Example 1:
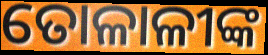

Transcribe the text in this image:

ତୋଳାଳୀଙ୍କ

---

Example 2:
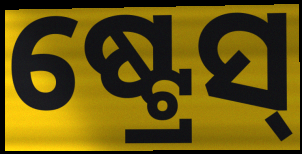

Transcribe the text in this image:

ଷ୍ଟ୍ରେସ୍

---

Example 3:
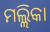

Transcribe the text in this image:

ମଲ୍ଲିକା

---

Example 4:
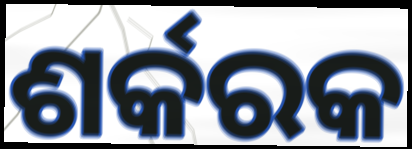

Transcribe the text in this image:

ଶର୍କରକ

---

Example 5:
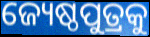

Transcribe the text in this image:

ଜ୍ୟେଷ୍ଠପୁତ୍ରକୁ